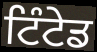
ਟਿੰਟੇਡ